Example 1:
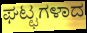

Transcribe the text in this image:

ಘಟ್ಟಗಳಾದ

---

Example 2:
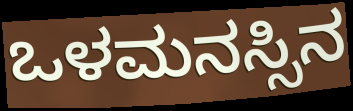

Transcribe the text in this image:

ಒಳಮನಸ್ಸಿನ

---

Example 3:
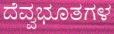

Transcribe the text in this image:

ದೆವ್ವಭೂತಗಳ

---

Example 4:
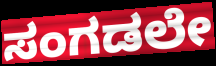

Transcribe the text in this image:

ಸಂಗಡಲೇ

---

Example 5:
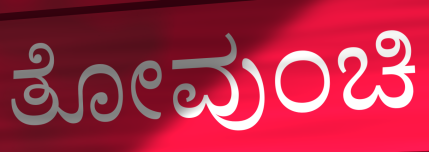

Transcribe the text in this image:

ತೋವುಂಚಿ